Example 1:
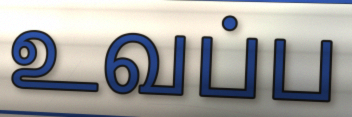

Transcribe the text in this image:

உவப்ப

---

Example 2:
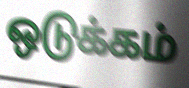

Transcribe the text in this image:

ஒடுக்கம்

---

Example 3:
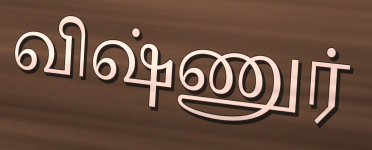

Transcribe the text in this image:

விஷ்ணுர்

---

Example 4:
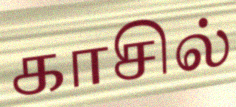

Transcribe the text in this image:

காசில்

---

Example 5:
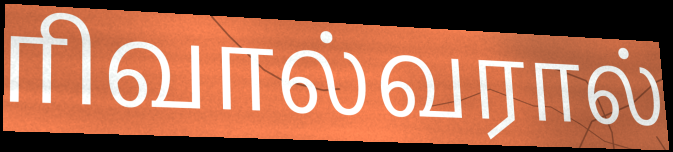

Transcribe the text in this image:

ரிவால்வரால்